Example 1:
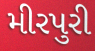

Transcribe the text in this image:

મીરપુરી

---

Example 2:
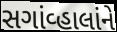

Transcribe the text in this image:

સગાંવ્હાલાંને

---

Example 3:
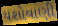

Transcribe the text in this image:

યશોવાણી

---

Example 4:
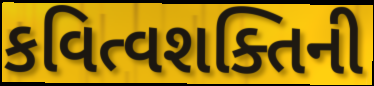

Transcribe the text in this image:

કવિત્વશક્તિની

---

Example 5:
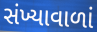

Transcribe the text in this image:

સંખ્યાવાળાં